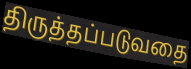
திருத்தப்படுவதை